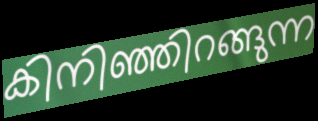
കിനിഞ്ഞിറങ്ങുന്ന